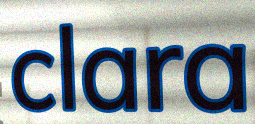
clara